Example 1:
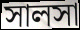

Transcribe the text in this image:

সালসা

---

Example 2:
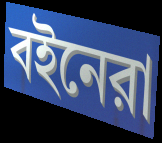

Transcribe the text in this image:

বইনেরা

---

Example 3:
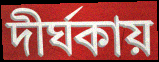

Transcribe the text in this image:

দীর্ঘকায়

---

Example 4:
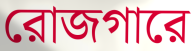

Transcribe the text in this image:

রোজগারে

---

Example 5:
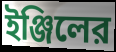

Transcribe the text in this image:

ইঞ্জিলের